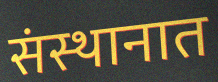
संस्थानात